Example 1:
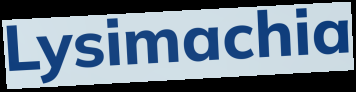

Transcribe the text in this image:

Lysimachia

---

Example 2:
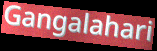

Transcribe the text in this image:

Gangalahari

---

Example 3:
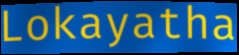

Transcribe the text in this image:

Lokayatha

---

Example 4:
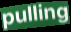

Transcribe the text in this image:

pulling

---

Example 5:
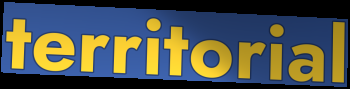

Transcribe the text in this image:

territorial